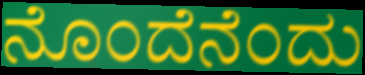
ನೊಂದೆನೆಂದು